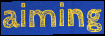
aiming